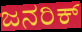
ಜನರಿಕ್